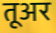
तूअर